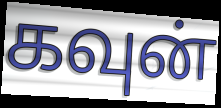
கவுன்